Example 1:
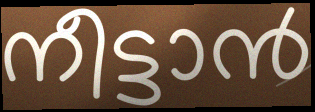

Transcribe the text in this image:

നീട്ടാൻ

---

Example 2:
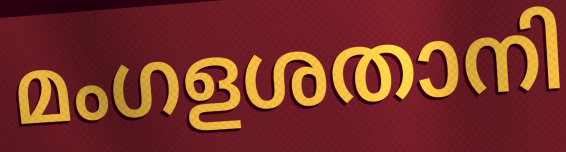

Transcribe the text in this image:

മംഗളശതാനി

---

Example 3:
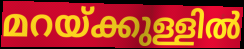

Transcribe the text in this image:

മറയ്ക്കുള്ളിൽ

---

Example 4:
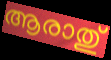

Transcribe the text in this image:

ആരാതു്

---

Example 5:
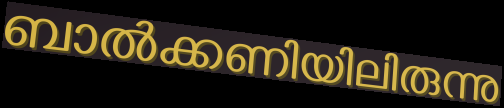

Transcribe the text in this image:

ബാൽക്കണിയിലിരുന്നു